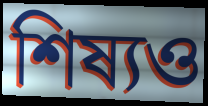
শিষ্যও